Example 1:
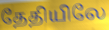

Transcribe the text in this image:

தேதியிலே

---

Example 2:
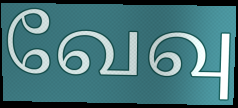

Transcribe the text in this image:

வேவு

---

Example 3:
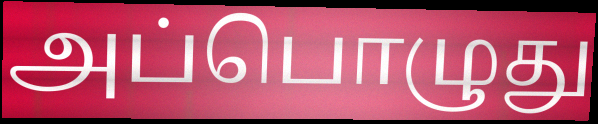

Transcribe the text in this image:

அப்பொழுது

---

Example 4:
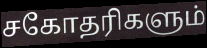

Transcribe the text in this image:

சகோதரிகளும்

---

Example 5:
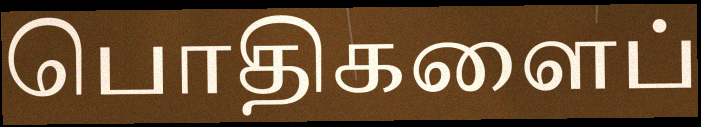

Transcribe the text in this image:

பொதிகளைப்